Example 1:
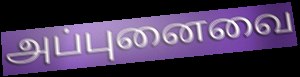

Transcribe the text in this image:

அப்புனைவை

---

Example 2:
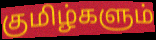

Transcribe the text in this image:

குமிழ்களும்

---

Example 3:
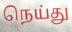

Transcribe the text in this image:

நெய்து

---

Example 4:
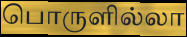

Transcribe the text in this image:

பொருளில்லா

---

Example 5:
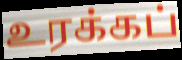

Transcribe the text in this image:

உரக்கப்